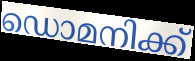
ഡൊമനിക്ക്